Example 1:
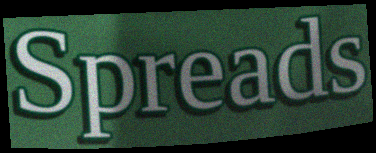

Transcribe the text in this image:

Spreads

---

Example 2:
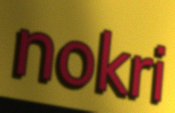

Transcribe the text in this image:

nokri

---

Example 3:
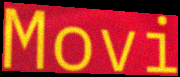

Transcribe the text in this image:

Movi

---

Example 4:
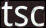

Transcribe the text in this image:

tsc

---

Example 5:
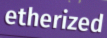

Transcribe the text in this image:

etherized